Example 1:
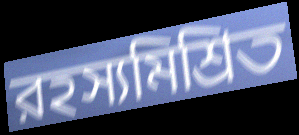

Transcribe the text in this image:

রহস্যমিশ্রিত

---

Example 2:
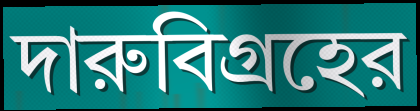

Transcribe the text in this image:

দারুবিগ্রহের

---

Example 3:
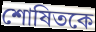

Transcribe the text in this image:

শোষিতকে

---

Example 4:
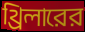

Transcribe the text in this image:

থ্রিলারের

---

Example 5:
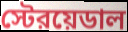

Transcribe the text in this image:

স্টেরয়েডাল